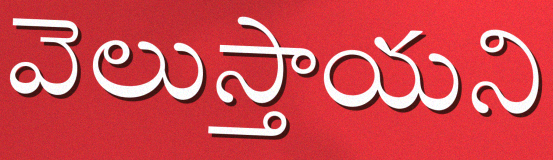
వెలుస్తాయని